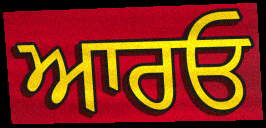
ਆਰਓ